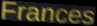
Frances